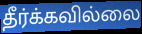
தீர்க்கவில்லை